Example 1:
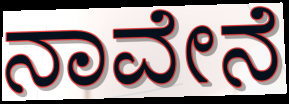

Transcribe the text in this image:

ನಾವೇನೆ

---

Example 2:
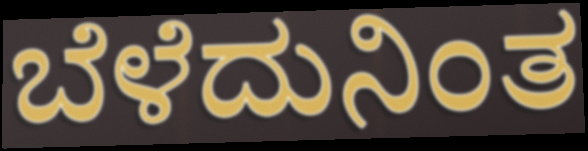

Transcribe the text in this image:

ಬೆಳೆದುನಿಂತ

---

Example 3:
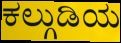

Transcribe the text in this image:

ಕಲ್ಗುಡಿಯ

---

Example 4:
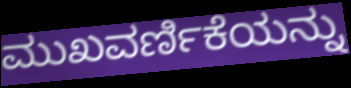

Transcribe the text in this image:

ಮುಖವರ್ಣಿಕೆಯನ್ನು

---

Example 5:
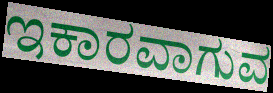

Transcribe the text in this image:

ಇಕಾರವಾಗುವ